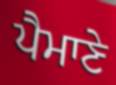
ਪੈਮਾਣੇ